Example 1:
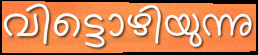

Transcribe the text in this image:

വിട്ടൊഴിയുന്നു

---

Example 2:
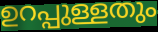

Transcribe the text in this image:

ഉറപ്പുള്ളതും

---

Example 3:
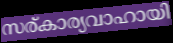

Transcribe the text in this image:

സര്കാര്യവാഹായി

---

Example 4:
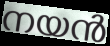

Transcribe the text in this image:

നയൻ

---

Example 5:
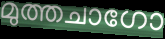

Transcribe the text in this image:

മുത്തചാഗോ